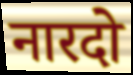
नारदो